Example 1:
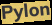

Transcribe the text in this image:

Pylon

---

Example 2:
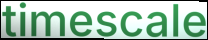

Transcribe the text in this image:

timescale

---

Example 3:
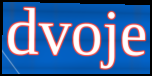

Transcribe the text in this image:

dvoje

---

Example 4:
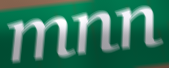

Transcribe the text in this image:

mnn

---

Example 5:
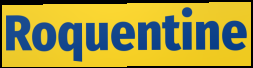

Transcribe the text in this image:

Roquentine